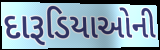
દારૂડિયાઓની